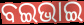
ବଇଭାଇ